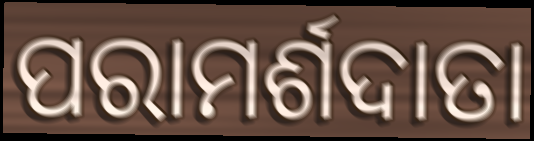
ପରାମର୍ଶଦାତା